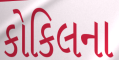
કોકિલના